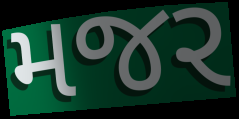
મજર